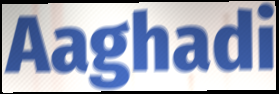
Aaghadi